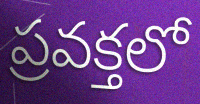
ప్రవక్తలో